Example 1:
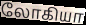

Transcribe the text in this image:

லோகியா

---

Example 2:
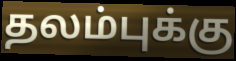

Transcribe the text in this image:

தலம்புக்கு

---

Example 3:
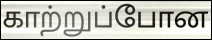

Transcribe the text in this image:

காற்றுப்போன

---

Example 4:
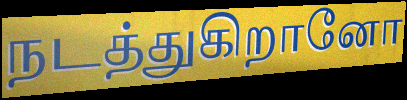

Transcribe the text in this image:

நடத்துகிறானோ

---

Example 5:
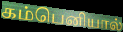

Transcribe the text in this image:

கம்பெனியால்